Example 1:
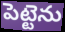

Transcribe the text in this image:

పెట్టెను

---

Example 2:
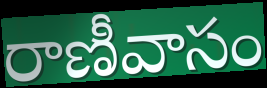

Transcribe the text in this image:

రాణీవాసం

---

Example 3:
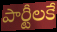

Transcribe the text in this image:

పార్టీలకే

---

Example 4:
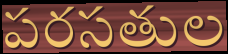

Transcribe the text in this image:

పరసతుల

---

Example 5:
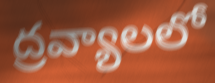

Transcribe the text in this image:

ద్రవ్యాలలో